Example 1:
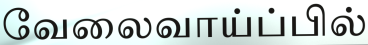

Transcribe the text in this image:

வேலைவாய்ப்பில்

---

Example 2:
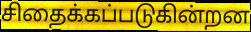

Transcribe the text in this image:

சிதைக்கப்படுகின்றன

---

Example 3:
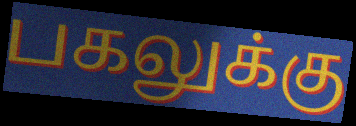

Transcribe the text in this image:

பகலுக்கு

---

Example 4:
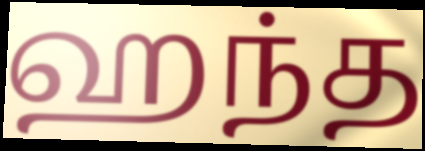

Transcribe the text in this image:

ஹந்த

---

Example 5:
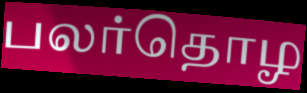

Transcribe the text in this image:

பலர்தொழ